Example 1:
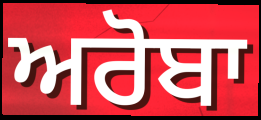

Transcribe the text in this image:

ਅਰੋਬਾ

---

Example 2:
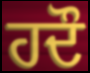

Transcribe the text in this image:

ਹਦੌ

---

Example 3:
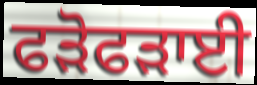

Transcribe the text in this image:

ਫੜੋਫੜਾਈ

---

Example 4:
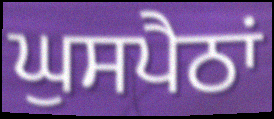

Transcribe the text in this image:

ਘੁਸਪੈਠਾਂ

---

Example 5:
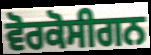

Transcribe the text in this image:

ਵੋਰਕੋਸੀਗਨ